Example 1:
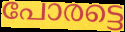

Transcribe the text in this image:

പോരട്ടെ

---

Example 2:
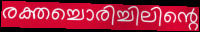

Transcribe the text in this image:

രക്തച്ചൊരിച്ചിലിന്റെ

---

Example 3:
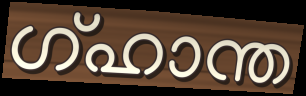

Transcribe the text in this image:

ഗ്ഹാന്ത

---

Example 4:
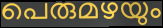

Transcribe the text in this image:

പെരുമഴയും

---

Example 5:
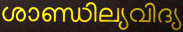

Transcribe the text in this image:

ശാണ്ഡില്യവിദ്യ